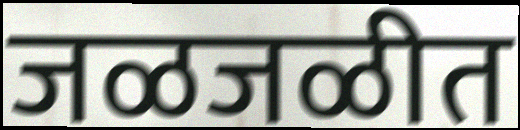
जळजळीत